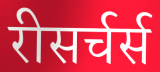
रीसर्चर्स